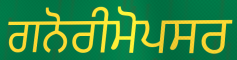
ਗਨੋਰੀਮੋਪਸਰ